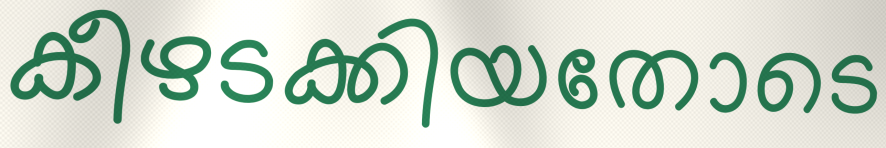
കീഴടക്കിയതോടെ